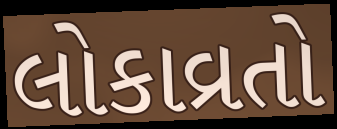
લોકાવ્રતો